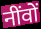
नींवों